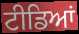
ਟੀਡਿਆਂ